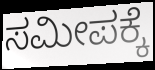
ಸಮೀಪಕ್ಕೆ